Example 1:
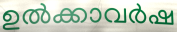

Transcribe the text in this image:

ഉൽക്കാവർഷ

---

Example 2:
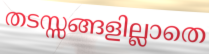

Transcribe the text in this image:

തടസ്സങ്ങളില്ലാതെ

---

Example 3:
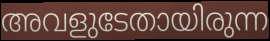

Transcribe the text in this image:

അവളുടേതായിരുന്ന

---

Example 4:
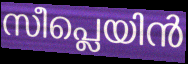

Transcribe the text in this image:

സീപ്ലെയിൻ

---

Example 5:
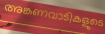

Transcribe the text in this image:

അങ്കണവാടികളുടെ